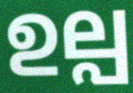
ഉല്പ